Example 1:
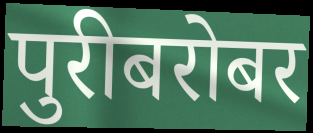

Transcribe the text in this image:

पुरीबरोबर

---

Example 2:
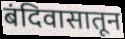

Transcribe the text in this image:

बंदिवासातून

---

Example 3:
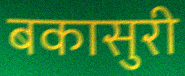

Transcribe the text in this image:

बकासुरी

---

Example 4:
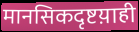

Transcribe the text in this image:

मानसिकदृष्टय़ाही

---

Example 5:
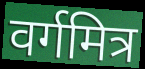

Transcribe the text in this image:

वर्गमित्र